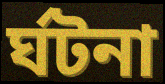
র্ঘটনা